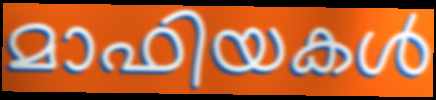
മാഫിയകൾ